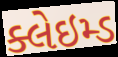
ક્લેઇમ્ડ